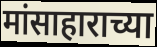
मांसाहाराच्या